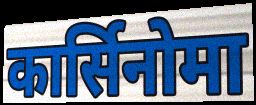
कार्सिनोमा